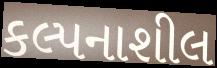
કલ્પનાશીલ